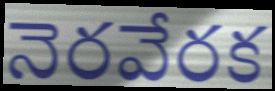
నెరవేరక